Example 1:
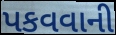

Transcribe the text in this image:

પકવવાની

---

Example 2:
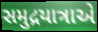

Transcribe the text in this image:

સમુદ્રયાત્રાએ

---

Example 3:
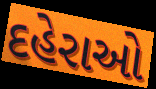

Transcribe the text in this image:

દહેરાઓ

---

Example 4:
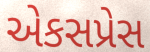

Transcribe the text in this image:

એકસપ્રેસ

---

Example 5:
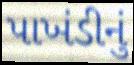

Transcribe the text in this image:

પાખંડીનું